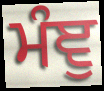
ਮੰਞੁ